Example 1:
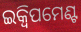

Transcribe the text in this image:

ଇକ୍ୱିପମେଣ୍ଟ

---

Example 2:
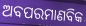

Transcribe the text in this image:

ଅବପରମାଣବିକ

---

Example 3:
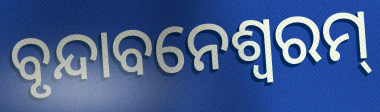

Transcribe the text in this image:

ବୃନ୍ଦାବନେଶ୍ୱରମ୍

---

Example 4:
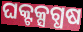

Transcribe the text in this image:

ଘକ୍ଟକ୍ସଗ୍ଧଷ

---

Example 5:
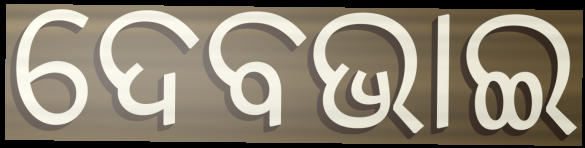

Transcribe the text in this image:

ଦେବଭାଇ